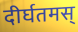
दीर्घतमस्